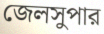
জেলসুপার